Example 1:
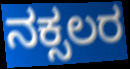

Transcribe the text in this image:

ನಕ್ಸಲರ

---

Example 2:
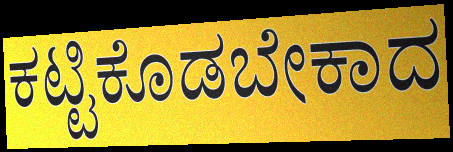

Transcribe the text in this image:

ಕಟ್ಟಿಕೊಡಬೇಕಾದ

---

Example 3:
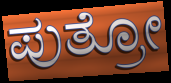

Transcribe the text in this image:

ಪುತ್ರೋ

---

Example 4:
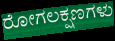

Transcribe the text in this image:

ರೋಗಲಕ್ಷಣಗಳು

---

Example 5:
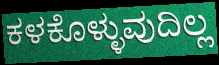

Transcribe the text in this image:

ಕಳಕೊಳ್ಳುವುದಿಲ್ಲ